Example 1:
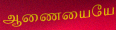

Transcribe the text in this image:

ஆணையையே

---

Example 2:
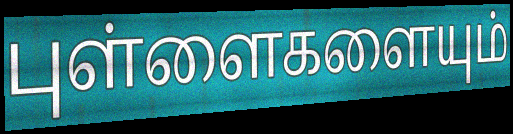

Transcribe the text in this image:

புள்ளைகளையும்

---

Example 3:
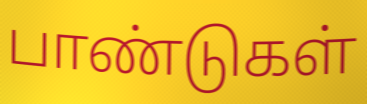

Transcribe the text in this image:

பாண்டுகள்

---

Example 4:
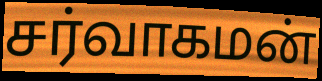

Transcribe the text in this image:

சர்வாகமன்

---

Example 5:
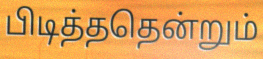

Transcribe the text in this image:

பிடித்ததென்றும்